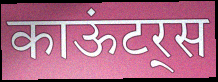
काऊंटर्स